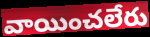
వాయించలేరు